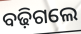
ବଢ଼ିଗଲେ